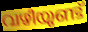
വഴിയുണ്ട്